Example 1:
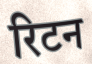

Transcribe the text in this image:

रिटन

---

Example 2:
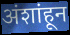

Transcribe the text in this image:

अंशांहून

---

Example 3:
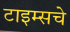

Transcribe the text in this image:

टाइम्सचे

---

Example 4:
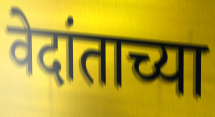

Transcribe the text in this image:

वेदांताच्या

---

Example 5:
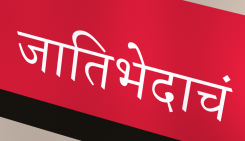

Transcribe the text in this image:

जातिभेदाचं